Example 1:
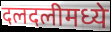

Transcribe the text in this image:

दलदलीमध्ये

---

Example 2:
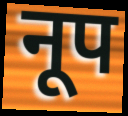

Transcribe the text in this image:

नूप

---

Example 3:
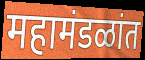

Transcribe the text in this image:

महामंडळांत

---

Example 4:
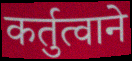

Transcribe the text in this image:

कर्तुत्वाने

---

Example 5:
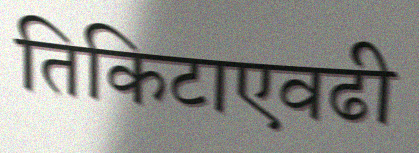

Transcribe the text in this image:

तिकिटाएवढी